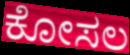
ಕೋಸಲ